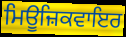
ਮਿਊਜ਼ਿਕਵਾਇਰ